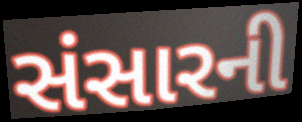
સંસારની